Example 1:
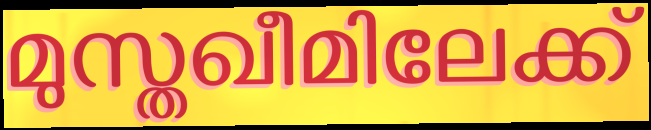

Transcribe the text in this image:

മുസ്തഖീമിലേക്ക്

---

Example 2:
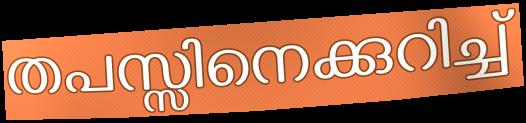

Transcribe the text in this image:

തപസ്സിനെക്കുറിച്ച്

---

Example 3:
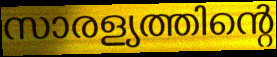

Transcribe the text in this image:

സാരള്യത്തിന്റെ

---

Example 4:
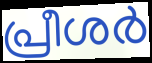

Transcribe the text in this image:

പ്രീശർ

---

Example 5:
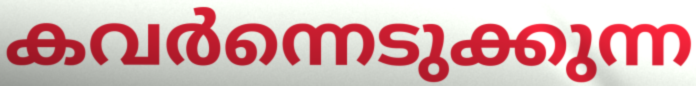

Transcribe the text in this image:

കവർന്നെടുക്കുന്ന